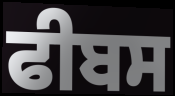
ਫੀਬਸ